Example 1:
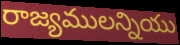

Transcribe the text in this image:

రాజ్యములన్నియు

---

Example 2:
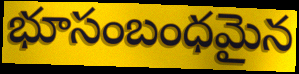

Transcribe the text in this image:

భూసంబంధమైన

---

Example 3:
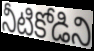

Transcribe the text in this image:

నీటికోడిని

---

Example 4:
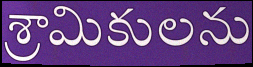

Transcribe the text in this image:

శ్రామికులను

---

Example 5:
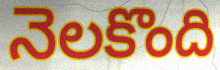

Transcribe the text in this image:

నెలకొంది